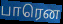
பாரென